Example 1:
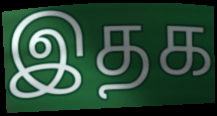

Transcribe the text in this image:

இதக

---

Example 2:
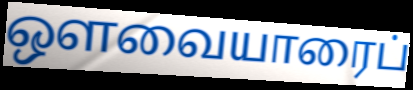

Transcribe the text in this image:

ஔவையாரைப்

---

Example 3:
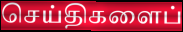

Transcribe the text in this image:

செய்திகளைப்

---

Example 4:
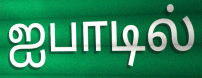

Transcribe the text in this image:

ஐபாடில்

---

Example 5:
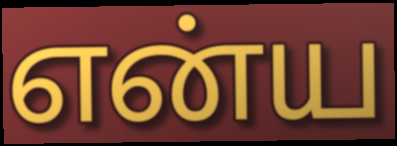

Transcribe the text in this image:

என்ய